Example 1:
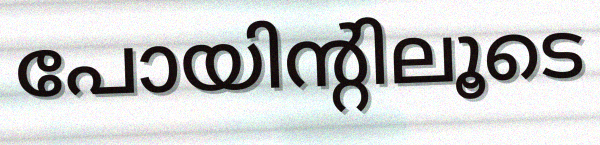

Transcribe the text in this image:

പോയിന്റിലൂടെ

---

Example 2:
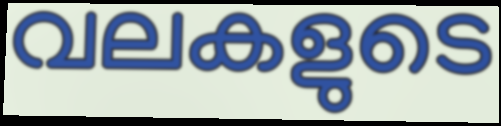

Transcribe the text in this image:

വലകളുടെ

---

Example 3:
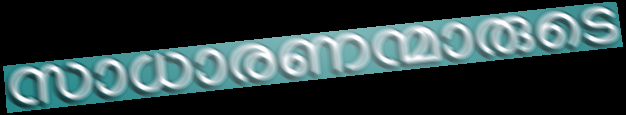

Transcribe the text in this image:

സാധാരണന്മാരുടെ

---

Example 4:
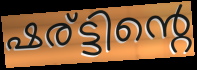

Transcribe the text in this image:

ഷര്ട്ടിന്റെ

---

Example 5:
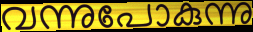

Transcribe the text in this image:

വന്നുപോകുന്നു